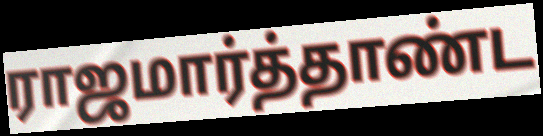
ராஜமார்த்தாண்ட